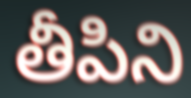
తీపిని